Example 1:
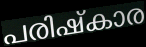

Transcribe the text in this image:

പരിഷ്‌കാര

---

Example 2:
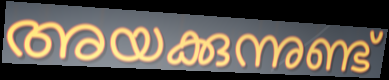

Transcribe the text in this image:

അയക്കുന്നുണ്ട്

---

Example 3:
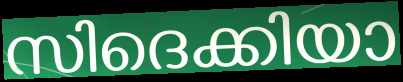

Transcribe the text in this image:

സിദെക്കിയാ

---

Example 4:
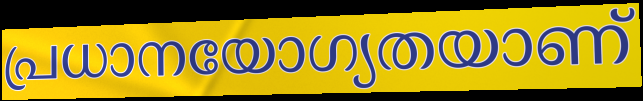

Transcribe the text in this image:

പ്രധാനയോഗ്യതയാണ്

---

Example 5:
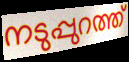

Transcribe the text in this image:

നടുപ്പുറത്ത്